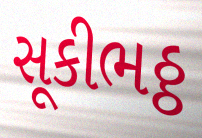
સૂકીભઠ્ઠ